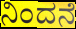
ನಿಂದನೆ